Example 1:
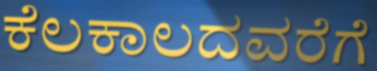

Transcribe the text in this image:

ಕೆಲಕಾಲದವರೆಗೆ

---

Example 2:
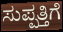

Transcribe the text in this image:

ಸುಪ್ಪತ್ತಿಗೆ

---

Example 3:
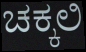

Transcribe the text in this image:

ಚಕ್ಕಲಿ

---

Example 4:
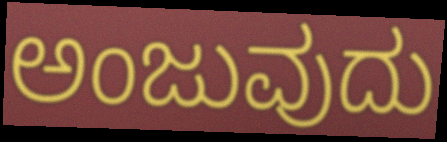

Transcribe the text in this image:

ಅಂಜುವುದು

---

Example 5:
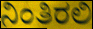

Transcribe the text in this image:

ನಿಂತಿರಲಿ